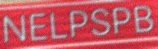
NELPSPB